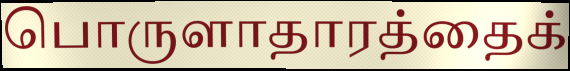
பொருளாதாரத்தைக்